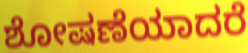
ಶೋಷಣೆಯಾದರೆ